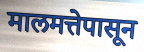
मालमत्तेपासून